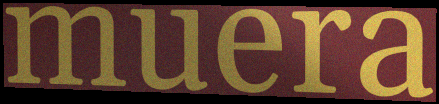
muera